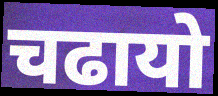
चढायो